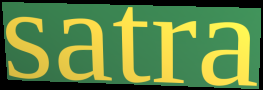
satra